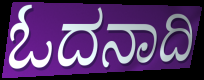
ಓದನಾದಿ